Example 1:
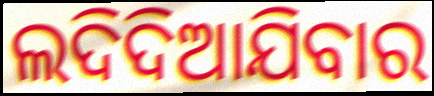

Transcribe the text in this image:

ଲଦିଦିଆଯିବାର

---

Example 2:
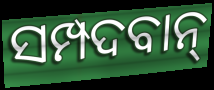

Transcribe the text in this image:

ସମ୍ପଦବାନ୍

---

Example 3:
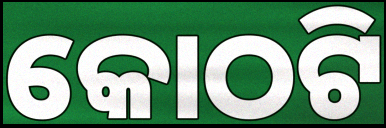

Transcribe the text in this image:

କୋଠଟି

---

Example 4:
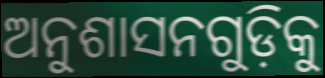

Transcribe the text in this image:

ଅନୁଶାସନଗୁଡ଼ିକୁ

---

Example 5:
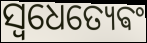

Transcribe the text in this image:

ସ୍ଵଧେତ୍ଯେଵଂ